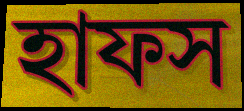
হাফস